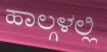
ಹಾಲ್ಗಳಲ್ಲಿ